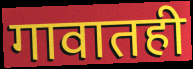
गावातही